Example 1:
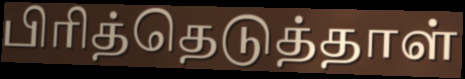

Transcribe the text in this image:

பிரித்தெடுத்தாள்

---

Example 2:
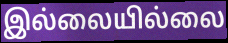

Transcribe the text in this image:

இல்லையில்லை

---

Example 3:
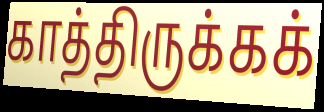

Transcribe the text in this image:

காத்திருக்கக்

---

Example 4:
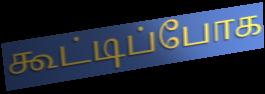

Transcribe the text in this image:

கூட்டிப்போக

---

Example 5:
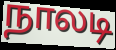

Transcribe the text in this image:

நாலடி